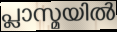
പ്ലാസ്മയിൽ